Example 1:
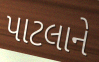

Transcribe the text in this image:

પાટલાને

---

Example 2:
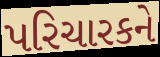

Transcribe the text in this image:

પરિચારકને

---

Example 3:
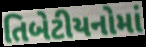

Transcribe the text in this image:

તિબેટીયનોમાં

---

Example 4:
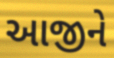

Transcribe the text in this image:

આજીને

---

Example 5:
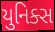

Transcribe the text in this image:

યુનિક્સ